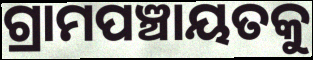
ଗ୍ରାମପଞ୍ଚାୟତକୁ